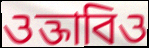
ওক্তাবিও